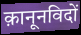
क़ानूनविदों